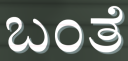
ಬಂತೆ